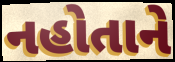
નહોતાને